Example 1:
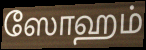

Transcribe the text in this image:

ஸோஹம்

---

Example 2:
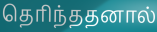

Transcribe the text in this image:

தெரிந்ததனால்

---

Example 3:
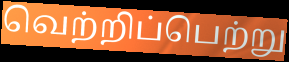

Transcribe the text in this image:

வெற்றிப்பெற்று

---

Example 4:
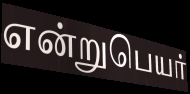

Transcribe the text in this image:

என்றுபெயர்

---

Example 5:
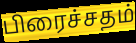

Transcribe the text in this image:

பிரைச்சதம்